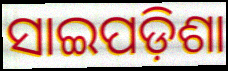
ସାଇପଡ଼ିଶା